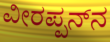
ವೀರಪ್ಪನ್‍ನ